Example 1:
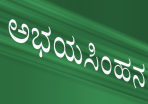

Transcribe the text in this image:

ಅಭಯಸಿಂಹನ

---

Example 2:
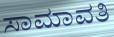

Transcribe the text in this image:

ಸಾಮಾವತಿ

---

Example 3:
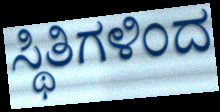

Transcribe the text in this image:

ಸ್ಥಿತಿಗಳಿಂದ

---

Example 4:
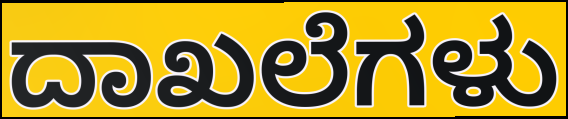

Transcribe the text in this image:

ದಾಖಲೆಗಳು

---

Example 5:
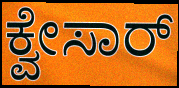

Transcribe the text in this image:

ಕ್ವೇಸಾರ್